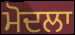
ਮੋਦਲਾ